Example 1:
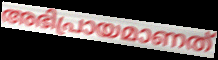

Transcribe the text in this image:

അഭിപ്രായമാണത്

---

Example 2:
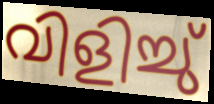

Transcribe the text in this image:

വിളിച്ചു്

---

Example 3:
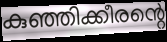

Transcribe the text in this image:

കുഞ്ഞിക്കീരന്റെ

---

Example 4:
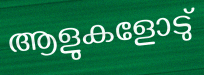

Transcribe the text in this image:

ആളുകളോടു്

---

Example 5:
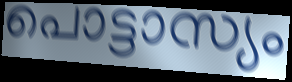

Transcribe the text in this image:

പൊട്ടാസ്യം